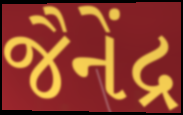
જૈનેંદ્ર